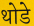
थोडे